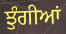
ਝੁੰਗੀਆਂ